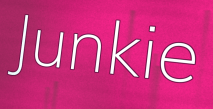
Junkie